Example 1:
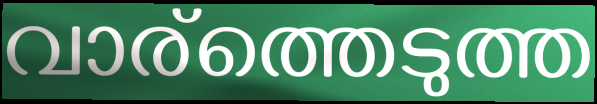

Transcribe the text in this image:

വാര്ത്തെടുത്ത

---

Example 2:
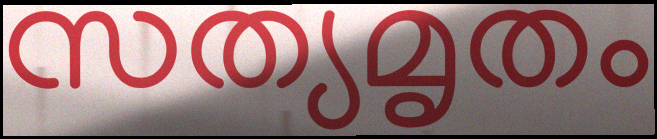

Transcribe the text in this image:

സത്യമൃതം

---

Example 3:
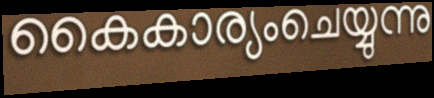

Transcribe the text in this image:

കൈകാര്യംചെയ്യുന്നു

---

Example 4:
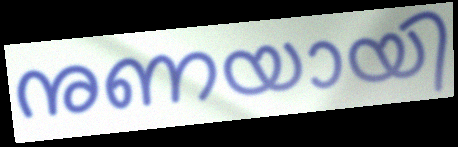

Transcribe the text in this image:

നുണയായി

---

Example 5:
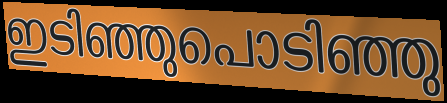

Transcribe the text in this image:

ഇടിഞ്ഞുപൊടിഞ്ഞു